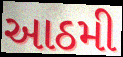
આઠમી